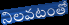
నిలవటంతో